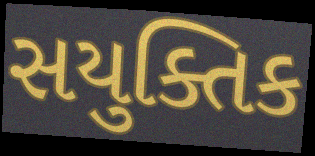
સયુક્તિક